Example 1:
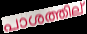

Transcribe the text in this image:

പാശത്തില്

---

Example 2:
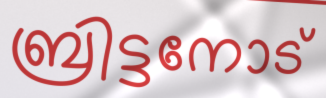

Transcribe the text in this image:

ബ്രിട്ടനോട്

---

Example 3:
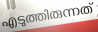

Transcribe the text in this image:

എടുത്തിരുന്നത്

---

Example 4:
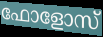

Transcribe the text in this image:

ഫോളോസ്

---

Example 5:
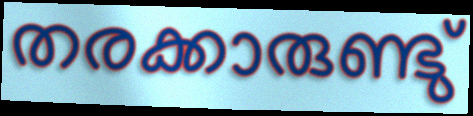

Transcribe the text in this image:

തരക്കാരുണ്ടു്